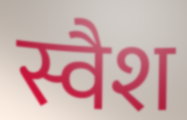
स्वैश